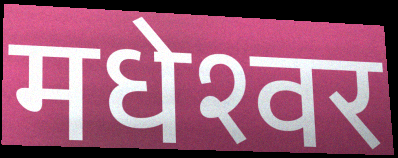
मधेश्वर